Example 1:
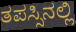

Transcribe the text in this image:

ತಪಸ್ಸಿನಲ್ಲಿ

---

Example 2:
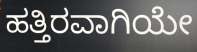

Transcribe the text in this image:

ಹತ್ತಿರವಾಗಿಯೇ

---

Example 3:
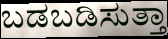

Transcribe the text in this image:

ಬಡಬಡಿಸುತ್ತಾ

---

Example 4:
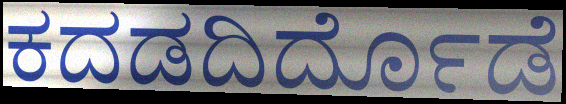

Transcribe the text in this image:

ಕದಡದಿರ್ದೊಡೆ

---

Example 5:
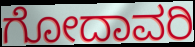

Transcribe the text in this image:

ಗೋದಾವರಿ